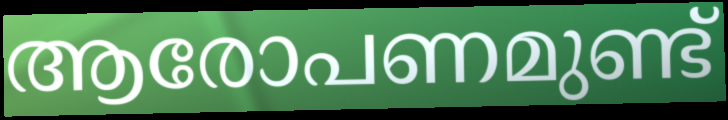
ആരോപണമുണ്ട്